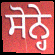
ਸੋਨ੍ਹੇ